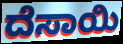
ದೆಸಾಯಿ